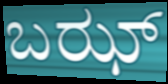
ಬಝ್